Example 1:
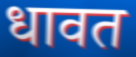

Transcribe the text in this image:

धावत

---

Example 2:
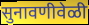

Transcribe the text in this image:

सुनावणीवेळी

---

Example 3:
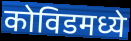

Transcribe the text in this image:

कोविडमध्ये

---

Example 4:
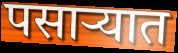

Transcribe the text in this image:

पसार्‍यात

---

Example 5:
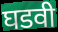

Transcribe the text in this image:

घडवी